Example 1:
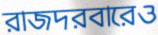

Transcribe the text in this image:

রাজদরবারেও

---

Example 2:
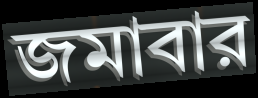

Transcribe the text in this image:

জমাবার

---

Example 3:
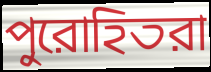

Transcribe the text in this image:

পুরোহিতরা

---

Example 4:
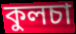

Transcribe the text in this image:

কুলচা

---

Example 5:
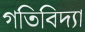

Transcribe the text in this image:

গতিবিদ্যা